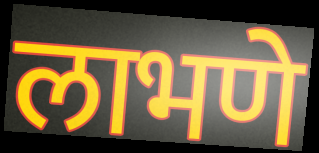
लाभणे